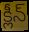
క్లీన్